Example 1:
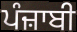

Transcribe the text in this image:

ਪੰਜ਼ਾਬੀ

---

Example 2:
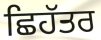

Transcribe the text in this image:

ਛਿਹੱਤਰ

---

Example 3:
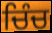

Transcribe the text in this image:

ਚਿੰਚ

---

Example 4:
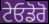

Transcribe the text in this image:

ਟੇਓਡੋਰੋ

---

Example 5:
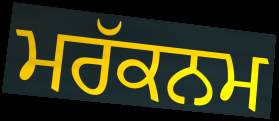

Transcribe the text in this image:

ਮਰੱਕਨਮ